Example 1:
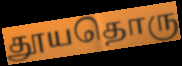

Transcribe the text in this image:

தூயதொரு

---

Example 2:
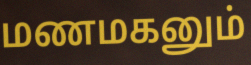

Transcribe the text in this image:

மணமகனும்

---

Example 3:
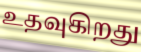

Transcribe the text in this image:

உதவுகிறது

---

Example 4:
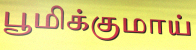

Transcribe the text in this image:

பூமிக்குமாய்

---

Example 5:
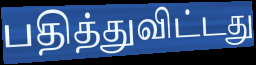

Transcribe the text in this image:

பதித்துவிட்டது